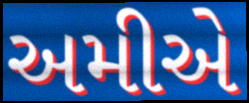
અમીએ